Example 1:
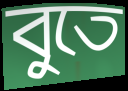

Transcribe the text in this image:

বুতে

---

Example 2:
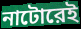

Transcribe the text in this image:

নাটোরেই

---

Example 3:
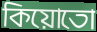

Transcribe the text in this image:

কিয়োতো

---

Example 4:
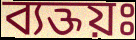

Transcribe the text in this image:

ব্যক্তয়ঃ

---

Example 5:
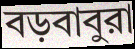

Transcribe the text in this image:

বড়বাবুরা